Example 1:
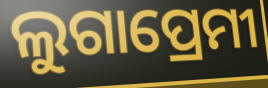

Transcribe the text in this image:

ଲୁଗାପ୍ରେମୀ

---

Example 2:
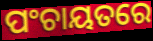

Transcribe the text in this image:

ପଂଚାୟତରେ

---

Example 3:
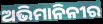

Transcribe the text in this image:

ଅଭିମାନିନୀର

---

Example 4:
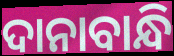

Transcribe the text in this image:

ଦାନାବାନ୍ଧି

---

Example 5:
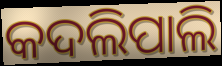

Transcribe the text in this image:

କଦଲିପାଲି